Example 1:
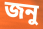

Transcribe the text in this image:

জনু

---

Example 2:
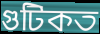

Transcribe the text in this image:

গুটিকত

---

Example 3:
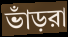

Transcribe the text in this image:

ভাঁড়রা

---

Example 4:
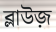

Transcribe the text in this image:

ব্লাউজ়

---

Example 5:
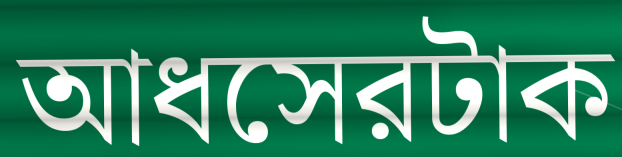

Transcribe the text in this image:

আধসেরটাক